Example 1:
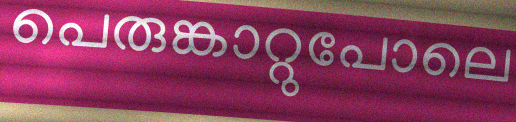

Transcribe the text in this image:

പെരുങ്കാറ്റുപോലെ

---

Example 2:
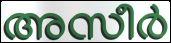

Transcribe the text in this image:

അസീർ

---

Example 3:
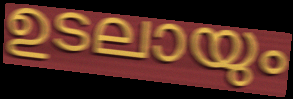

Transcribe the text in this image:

ഉടലായും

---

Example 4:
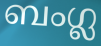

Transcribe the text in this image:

ബംഗ്ല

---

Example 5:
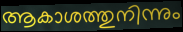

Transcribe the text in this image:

ആകാശത്തുനിന്നും